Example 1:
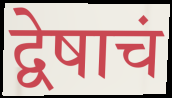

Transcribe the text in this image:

द्वेषाचं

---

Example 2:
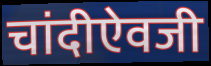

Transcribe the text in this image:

चांदीऐवजी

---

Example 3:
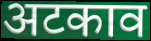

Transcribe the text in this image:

अटकाव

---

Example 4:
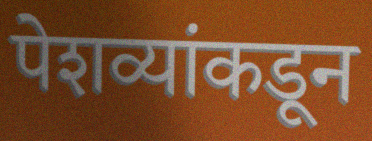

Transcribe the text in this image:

पेशव्यांकडून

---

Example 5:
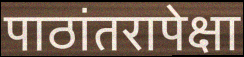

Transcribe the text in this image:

पाठांतरापेक्षा